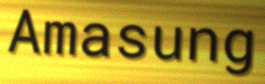
Amasung